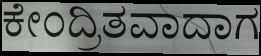
ಕೇಂದ್ರಿತವಾದಾಗ